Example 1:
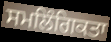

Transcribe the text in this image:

ਸਮਲਿੰਗਿਕਤਾ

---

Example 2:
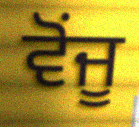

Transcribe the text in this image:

ਵੋਂਜੂ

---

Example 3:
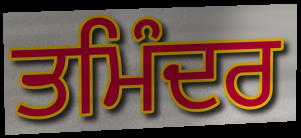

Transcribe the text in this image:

ਤਮਿੰਦਰ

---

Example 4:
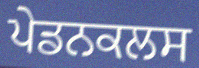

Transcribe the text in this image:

ਪੇਡਨਕਲਸ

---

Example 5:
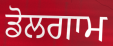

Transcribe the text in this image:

ਡੋਲਗਾਮ